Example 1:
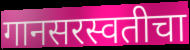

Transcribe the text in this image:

गानसरस्वतीचा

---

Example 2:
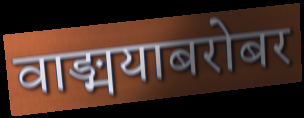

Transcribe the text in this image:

वाङ्मयाबरोबर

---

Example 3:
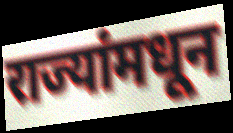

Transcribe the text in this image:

राज्यांमधून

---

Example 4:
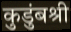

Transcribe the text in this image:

कुडुंबश्री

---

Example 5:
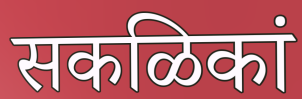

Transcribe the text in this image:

सकळिकां